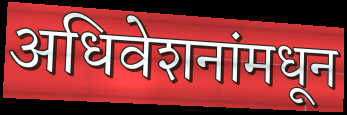
अधिवेशनांमधून